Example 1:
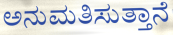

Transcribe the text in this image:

ಅನುಮತಿಸುತ್ತಾನೆ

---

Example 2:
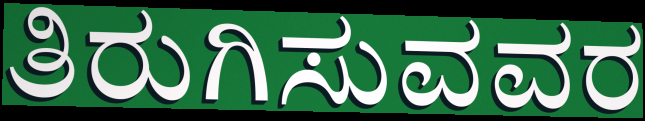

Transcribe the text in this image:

ತಿರುಗಿಸುವವರ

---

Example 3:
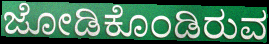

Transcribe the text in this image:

ಜೋಡಿಕೊಂಡಿರುವ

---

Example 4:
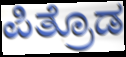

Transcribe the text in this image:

ಪಿತ್ರೊಡ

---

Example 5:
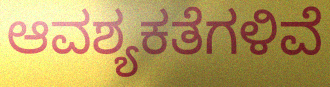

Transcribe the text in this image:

ಆವಶ್ಯಕತೆಗಳಿವೆ